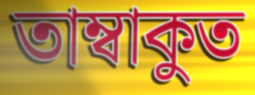
তাম্বাকুত